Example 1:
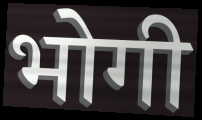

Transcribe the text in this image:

भोगी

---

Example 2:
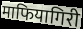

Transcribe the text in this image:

माफियागिरी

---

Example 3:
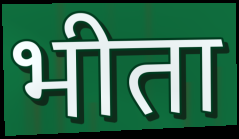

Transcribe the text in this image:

भीता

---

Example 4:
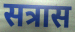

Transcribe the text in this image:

सत्रास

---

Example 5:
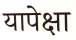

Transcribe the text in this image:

यापेक्षा